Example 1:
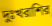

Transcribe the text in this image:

দুঃখরাশির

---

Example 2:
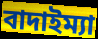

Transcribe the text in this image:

বাদাইম্যা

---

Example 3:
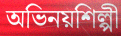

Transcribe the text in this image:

অভিনয়শিল্পী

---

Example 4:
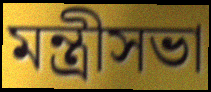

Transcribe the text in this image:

মন্ত্রীসভা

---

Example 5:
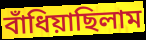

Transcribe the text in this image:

বাঁধিয়াছিলাম